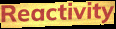
Reactivity